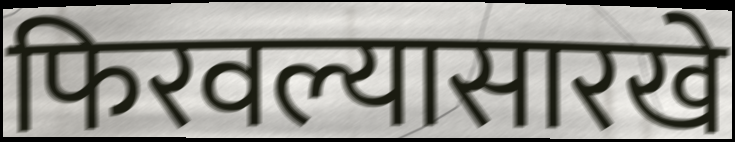
फिरवल्यासारखे